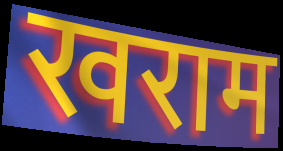
खराम